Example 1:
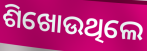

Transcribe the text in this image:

ଶିଖୋଉଥିଲେ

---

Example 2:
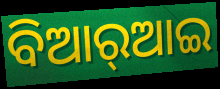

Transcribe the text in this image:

ବିଆର୍‌ଆଇ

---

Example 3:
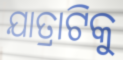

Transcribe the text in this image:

ଯାତ୍ରାଟିକୁ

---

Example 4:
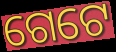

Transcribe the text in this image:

ଗେଟେ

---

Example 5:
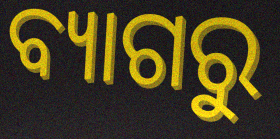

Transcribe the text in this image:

ବ୍ୟାଗରୁ